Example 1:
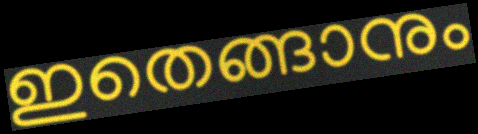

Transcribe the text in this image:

ഇതെങ്ങാനും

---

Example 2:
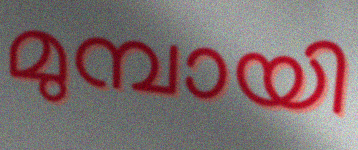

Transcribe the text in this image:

മുമ്പായി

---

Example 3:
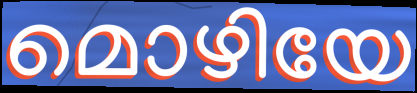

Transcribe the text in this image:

മൊഴിയേ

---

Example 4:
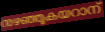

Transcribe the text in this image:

നുഴഞ്ഞുകയറാന്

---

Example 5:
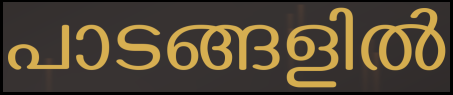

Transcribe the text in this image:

പാടങ്ങളിൽ